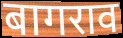
बागराव